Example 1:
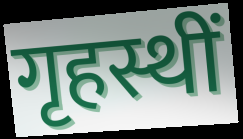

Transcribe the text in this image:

गृहस्थीं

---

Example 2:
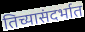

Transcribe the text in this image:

तिच्यासंदर्भात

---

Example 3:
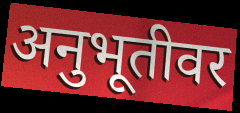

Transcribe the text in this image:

अनुभूतीवर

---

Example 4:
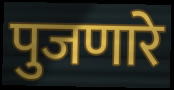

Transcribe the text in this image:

पुजणारे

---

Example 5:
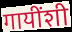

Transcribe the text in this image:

गायींशी